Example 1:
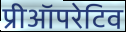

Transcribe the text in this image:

प्रीऑपरेटिव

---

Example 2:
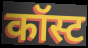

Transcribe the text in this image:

कॉस्ट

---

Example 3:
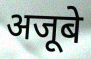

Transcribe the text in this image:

अजूबे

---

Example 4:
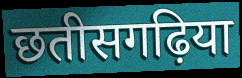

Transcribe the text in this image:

छतीसगढ़िया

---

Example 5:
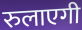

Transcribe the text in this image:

रुलाएगी